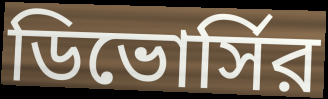
ডিভোর্সির